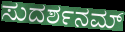
ಸುದರ್ಶನಮ್